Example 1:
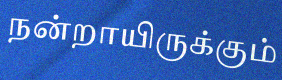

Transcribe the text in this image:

நன்றாயிருக்கும்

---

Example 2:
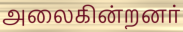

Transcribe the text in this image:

அலைகின்றனர்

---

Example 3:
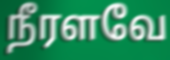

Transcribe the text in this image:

நீரளவே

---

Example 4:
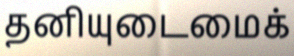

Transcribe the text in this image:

தனியுடைமைக்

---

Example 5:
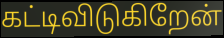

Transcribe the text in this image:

கட்டிவிடுகிறேன்